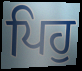
ਪਿਹੁ